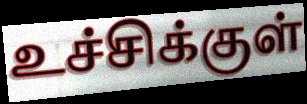
உச்சிக்குள்